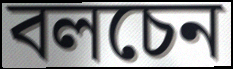
বলচেন